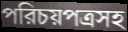
পরিচয়পত্রসহ